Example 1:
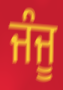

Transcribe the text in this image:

ਜੰਜੂ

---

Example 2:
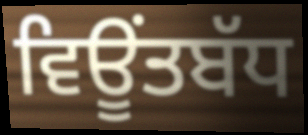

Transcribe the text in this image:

ਵਿਊਂਤਬੱਧ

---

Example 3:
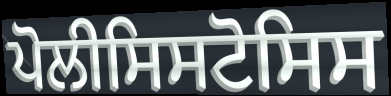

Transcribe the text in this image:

ਪੋਲੀਸਿਸਟੋਸਿਸ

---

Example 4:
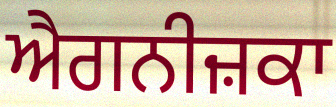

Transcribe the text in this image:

ਐਗਨੀਜ਼ਕਾ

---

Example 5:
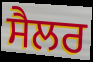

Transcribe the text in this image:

ਸੈਲਰ